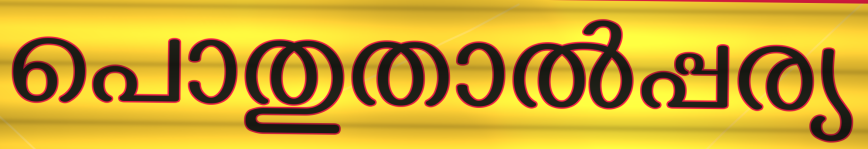
പൊതുതാൽപ്പര്യ